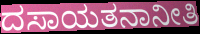
ದಸಾಯತನಾನೀತಿ